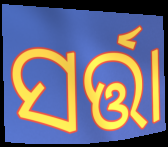
ସର୍ତ୍ତା